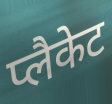
प्लैकेट